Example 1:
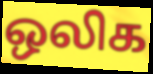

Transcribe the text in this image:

ஒலிக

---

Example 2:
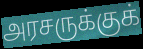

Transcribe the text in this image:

அரசருக்குக்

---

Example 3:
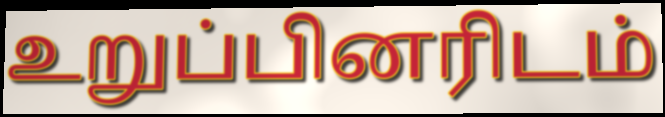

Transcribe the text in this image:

உறுப்பினரிடம்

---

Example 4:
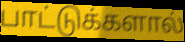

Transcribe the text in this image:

பாட்டுக்களால்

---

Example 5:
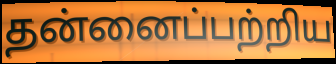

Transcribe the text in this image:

தன்னைப்பற்றிய